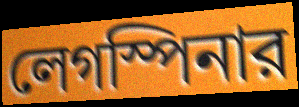
লেগস্পিনার